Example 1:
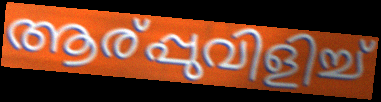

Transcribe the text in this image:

ആര്പ്പുവിളിച്ച്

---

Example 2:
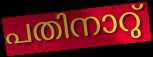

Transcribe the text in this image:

പതിനാറു്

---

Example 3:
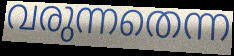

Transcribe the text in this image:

വരുന്നതെന്ന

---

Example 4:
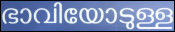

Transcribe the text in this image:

ഭാവിയോടുള്ള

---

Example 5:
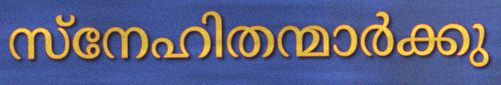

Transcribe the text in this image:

സ്നേഹിതന്മാർക്കു